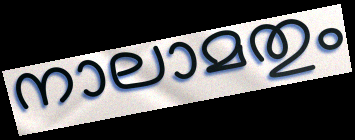
നാലാമതും